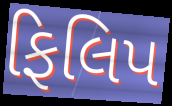
ફિલિપ